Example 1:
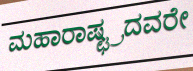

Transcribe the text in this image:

ಮಹಾರಾಷ್ಟ್ರದವರೇ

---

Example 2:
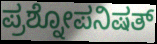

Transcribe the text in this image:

ಪ್ರಶ್ನೋಪನಿಷತ್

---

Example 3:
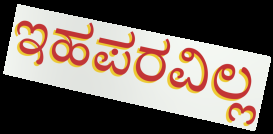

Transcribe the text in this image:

ಇಹಪರವಿಲ್ಲ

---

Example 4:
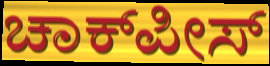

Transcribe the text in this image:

ಚಾಕ್‍ಪೀಸ್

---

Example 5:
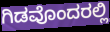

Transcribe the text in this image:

ಗಿಡವೊಂದರಲ್ಲಿ